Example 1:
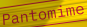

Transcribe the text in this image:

Pantomime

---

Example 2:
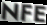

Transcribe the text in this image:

NFE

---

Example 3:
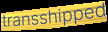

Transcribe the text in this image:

transshipped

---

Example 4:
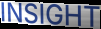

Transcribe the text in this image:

INSIGHT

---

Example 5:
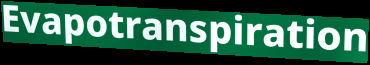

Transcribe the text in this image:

Evapotranspiration